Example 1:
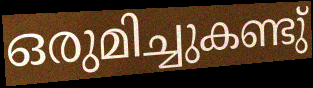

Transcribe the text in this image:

ഒരുമിച്ചുകണ്ടു്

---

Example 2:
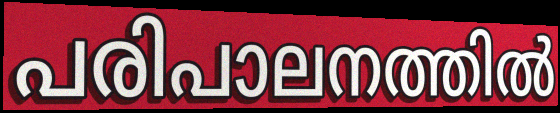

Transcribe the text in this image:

പരിപാലനത്തിൽ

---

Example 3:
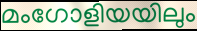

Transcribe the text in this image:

മംഗോളിയയിലും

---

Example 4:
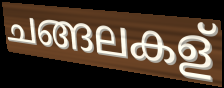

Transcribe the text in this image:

ചങ്ങലകള്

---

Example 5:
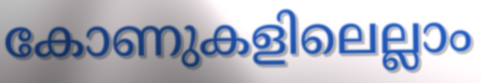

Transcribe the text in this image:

കോണുകളിലെല്ലാം